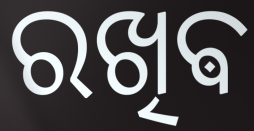
ରଖିଵ